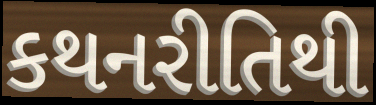
કથનરીતિથી